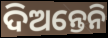
ଦିଅନ୍ତେନି